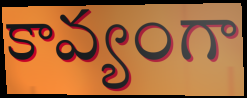
కావ్యంగా